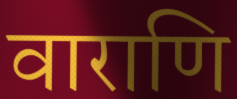
वाराणि